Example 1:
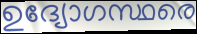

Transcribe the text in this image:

ഉദ്യോഗസ്ഥരെ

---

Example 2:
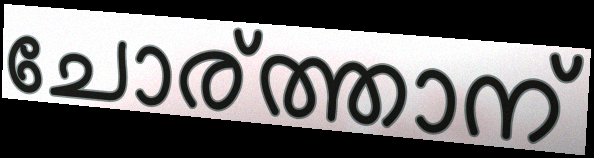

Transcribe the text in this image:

ചോര്ത്താന്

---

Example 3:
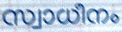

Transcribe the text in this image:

സ്വാധീനം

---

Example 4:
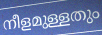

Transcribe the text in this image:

നീളമുള്ളതും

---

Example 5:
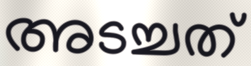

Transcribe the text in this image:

അടച്ചത്